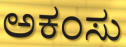
ಅಕಂಸು